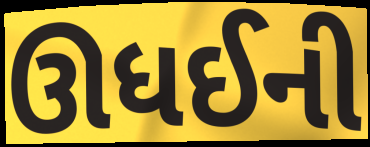
ઊધઈની